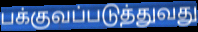
பக்குவப்படுத்துவது